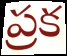
ప్రక